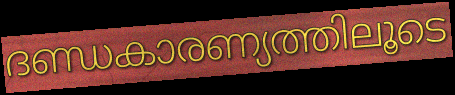
ദണ്ഡകാരണ്യത്തിലൂടെ